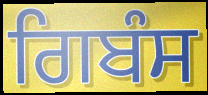
ਗਿਬੰਸ